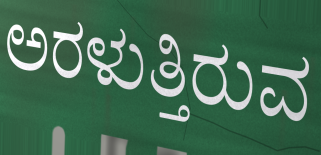
ಅರಳುತ್ತಿರುವ